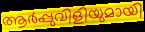
ആർപ്പുവിളിയുമായി